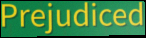
Prejudiced